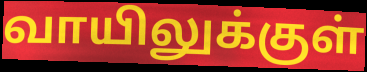
வாயிலுக்குள்